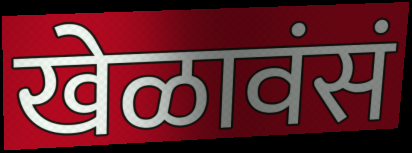
खेळावंसं